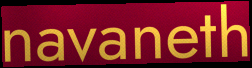
navaneth